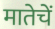
मातेचें